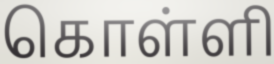
கொள்ளி